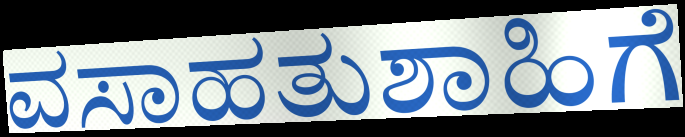
ವಸಾಹತುಶಾಹಿಗೆ